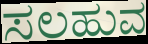
ಸಲಹುವ